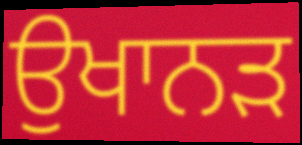
ਉਖਾਨੜ